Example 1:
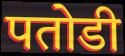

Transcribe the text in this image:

पतोडी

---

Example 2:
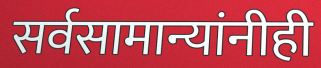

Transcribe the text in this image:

सर्वसामान्यांनीही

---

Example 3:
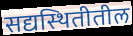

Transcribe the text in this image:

सद्यस्थितीतील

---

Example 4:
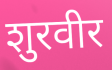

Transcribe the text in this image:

शुरवीर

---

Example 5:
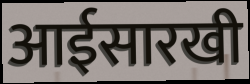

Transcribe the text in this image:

आईसारखी